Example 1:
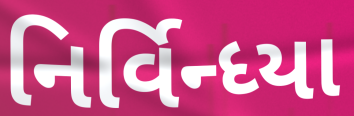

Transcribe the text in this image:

નિર્વિન્ધ્યા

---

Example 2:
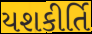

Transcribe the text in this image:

યશકીર્તિ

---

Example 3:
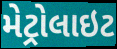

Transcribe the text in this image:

મેટ્રોલાઇટ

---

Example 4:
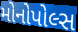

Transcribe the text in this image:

મોનોપોલ્સ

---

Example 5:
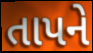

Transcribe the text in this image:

તાપને